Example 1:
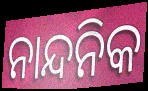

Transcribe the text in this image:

ନାନ୍ଦନିକ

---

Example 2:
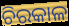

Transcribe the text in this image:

ଚିରକାଳ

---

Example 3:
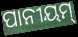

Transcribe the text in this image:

ପାନୀୟମ୍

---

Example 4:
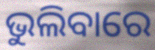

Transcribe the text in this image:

ଭୁଲିବାରେ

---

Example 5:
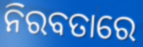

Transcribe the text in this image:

ନିରବତାରେ